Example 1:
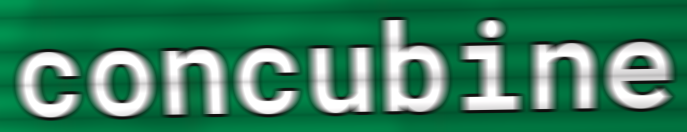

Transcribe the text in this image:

concubine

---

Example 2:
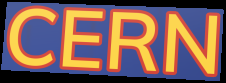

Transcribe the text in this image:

CERN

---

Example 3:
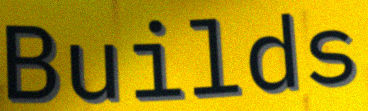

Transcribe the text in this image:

Builds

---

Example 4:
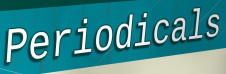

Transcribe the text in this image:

Periodicals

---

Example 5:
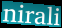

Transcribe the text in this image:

nirali